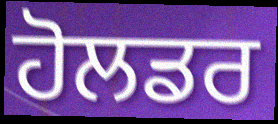
ਹੋਲਡਰ